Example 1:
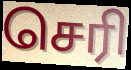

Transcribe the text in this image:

செரி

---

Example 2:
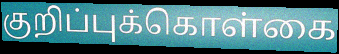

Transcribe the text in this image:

குறிப்புக்கொள்கை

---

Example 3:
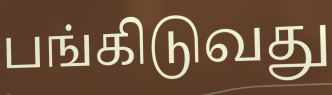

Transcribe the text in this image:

பங்கிடுவது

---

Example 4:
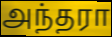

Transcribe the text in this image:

அந்தரா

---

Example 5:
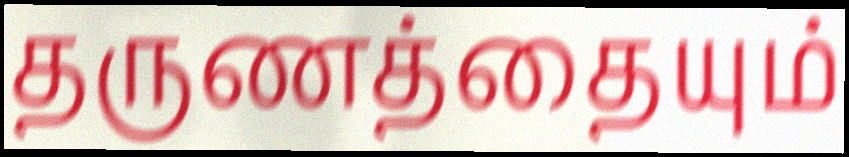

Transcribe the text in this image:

தருணத்தையும்